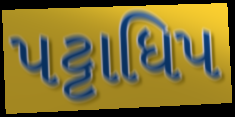
પટ્ટાધિપ